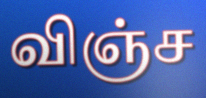
விஞ்ச